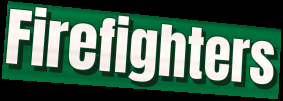
Firefighters